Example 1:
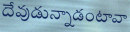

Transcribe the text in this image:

దేవుడున్నాడంటావా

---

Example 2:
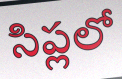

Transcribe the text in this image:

సిప్లలో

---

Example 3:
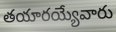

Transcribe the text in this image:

తయారయ్యేవారు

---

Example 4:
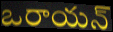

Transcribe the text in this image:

ఒరాయన్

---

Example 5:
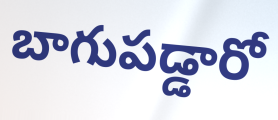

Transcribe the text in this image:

బాగుపడ్డారో